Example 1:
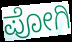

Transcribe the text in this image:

ಪೋಗಿ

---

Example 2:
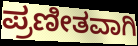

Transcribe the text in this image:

ಪ್ರಣೀತವಾಗಿ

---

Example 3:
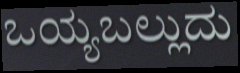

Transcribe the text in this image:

ಒಯ್ಯಬಲ್ಲುದು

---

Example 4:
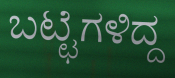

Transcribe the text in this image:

ಬಟ್ಟೆಗಳಿದ್ದ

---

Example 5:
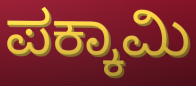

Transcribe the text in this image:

ಪಕ್ಕಾಮಿ